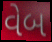
વેબ